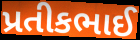
પ્રતીકભાઈ